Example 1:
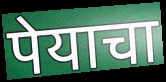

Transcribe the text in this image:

पेयाचा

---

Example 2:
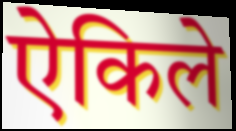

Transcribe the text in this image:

ऐकिले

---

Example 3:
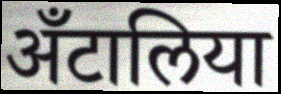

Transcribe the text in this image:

अँटालिया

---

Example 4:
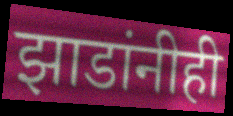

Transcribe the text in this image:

झाडांनीही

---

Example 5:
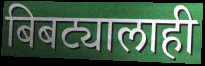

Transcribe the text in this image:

बिबट्यालाही